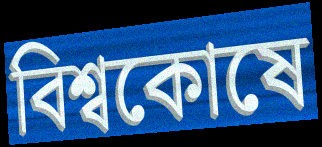
বিশ্বকোষে